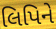
લિપિને